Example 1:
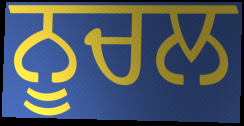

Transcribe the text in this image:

ਨੂਚਲ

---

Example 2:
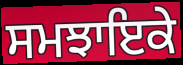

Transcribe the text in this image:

ਸਮਝਾਇਕੇ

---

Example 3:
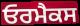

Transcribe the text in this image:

ਓਰਮੈਕਸ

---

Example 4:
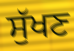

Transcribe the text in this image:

ਸੁੱਖਣ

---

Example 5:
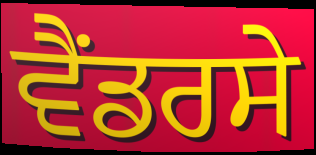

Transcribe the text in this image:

ਵੈਂਡਰਸੇ